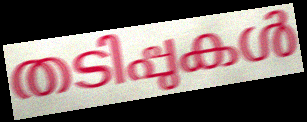
തടിപ്പുകൾ